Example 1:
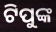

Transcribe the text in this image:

ଟିପୁଙ୍କ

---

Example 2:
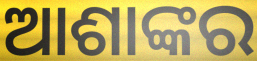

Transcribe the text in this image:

ଆଶାଙ୍କର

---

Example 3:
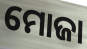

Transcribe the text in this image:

ମୋଜା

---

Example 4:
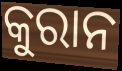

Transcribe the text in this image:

କୁରାନ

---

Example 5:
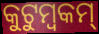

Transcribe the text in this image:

କୁଟୁମ୍ବକମ୍